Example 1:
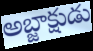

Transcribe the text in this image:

అబ్జాక్షుడు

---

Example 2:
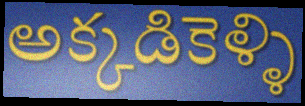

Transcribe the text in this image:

అక్కడికెళ్ళి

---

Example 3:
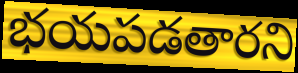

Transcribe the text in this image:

భయపడతారని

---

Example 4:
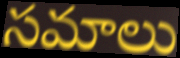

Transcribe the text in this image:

సమాలు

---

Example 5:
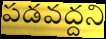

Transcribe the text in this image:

పడవద్దని